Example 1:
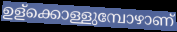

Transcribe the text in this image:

ഉള്ക്കൊള്ളുമ്പോഴാണ്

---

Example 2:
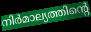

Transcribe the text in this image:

നിർമാല്യത്തിന്റെ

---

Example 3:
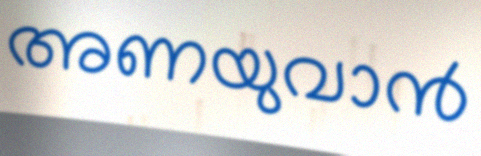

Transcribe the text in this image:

അണയുവാൻ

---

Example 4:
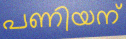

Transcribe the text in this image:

പണിയന്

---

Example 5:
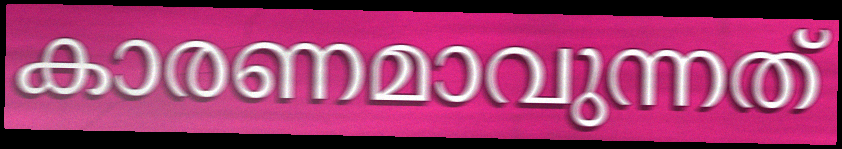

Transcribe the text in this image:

കാരണമാവുന്നത്